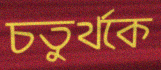
চতুর্থকে